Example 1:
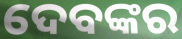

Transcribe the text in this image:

ଦେବଙ୍କର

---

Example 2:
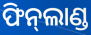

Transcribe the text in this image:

ଫିନ୍‌ଲାଣ୍ଡ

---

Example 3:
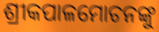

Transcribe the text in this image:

ଶ୍ରୀକପାଳମୋଚନଙ୍କୁ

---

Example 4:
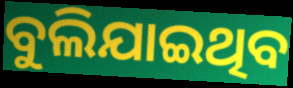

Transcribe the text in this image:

ବୁଲିଯାଇଥିବ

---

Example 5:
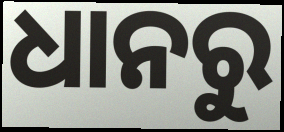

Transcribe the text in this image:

ଧାନରୁ